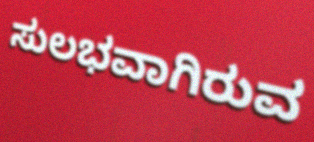
ಸುಲಭವಾಗಿರುವ